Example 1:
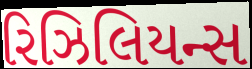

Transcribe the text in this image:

રિઝિલિયન્સ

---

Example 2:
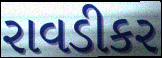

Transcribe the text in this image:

રાવડીકર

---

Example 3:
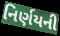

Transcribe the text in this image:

નિર્ણયની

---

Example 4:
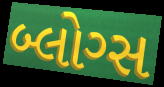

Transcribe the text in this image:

બ્લોગ્સ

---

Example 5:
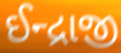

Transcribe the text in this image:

ઈન્દ્રાજી